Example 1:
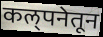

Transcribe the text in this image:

कल्पनेतून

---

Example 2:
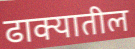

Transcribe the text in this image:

ढाक्यातील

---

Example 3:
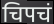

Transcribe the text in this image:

चिपचं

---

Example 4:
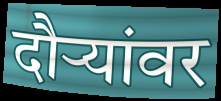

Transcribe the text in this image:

दौर्‍यांवर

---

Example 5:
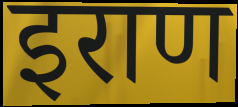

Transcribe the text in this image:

इराण